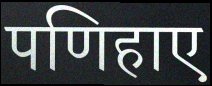
पणिहाए